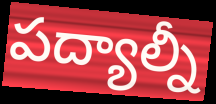
పద్యాల్నీ